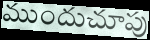
ముందుచూపు